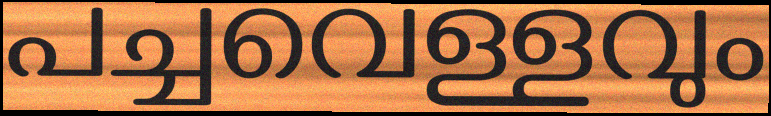
പച്ചവെള്ളവും